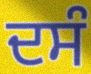
ਦਸੰ